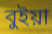
বুইয়া